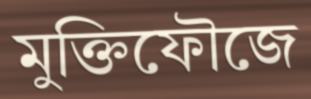
মুক্তিফৌজে